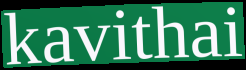
kavithai